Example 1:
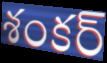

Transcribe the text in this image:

శంకర్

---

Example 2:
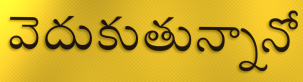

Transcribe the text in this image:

వెదుకుతున్నానో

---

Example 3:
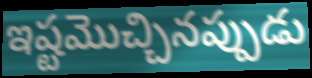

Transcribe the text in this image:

ఇష్టమొచ్చినప్పుడు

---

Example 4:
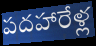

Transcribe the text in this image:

పదహారేళ్ల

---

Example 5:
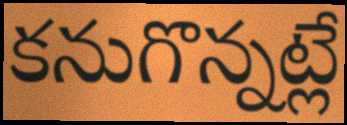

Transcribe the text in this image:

కనుగొన్నట్లే